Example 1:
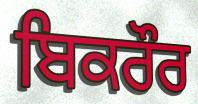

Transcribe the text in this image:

ਬਿਕਰੌਰ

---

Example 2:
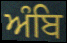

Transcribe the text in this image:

ਅੰਬਿ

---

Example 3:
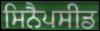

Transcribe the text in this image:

ਸਿਨੈਪਸੀਡ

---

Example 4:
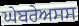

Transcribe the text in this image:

ਘੇਬਰੇਅਸਸ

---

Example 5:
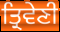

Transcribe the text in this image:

ਤ੍ਰਿਵੇਣੀ